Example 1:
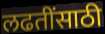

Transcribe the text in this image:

लढतींसाठी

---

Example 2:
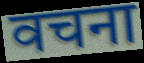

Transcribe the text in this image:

वचना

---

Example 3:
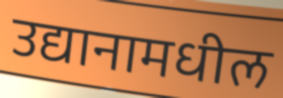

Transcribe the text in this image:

उद्यानामधील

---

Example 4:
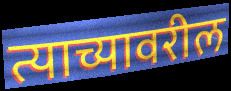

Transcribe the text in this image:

त्याच्यावरील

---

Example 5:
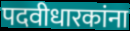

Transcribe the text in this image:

पदवीधारकांना